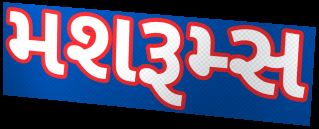
મશરૂમ્સ